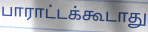
பாராட்டக்கூடாது